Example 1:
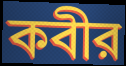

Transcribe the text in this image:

কবীর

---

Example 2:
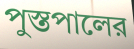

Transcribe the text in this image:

পুস্তপালের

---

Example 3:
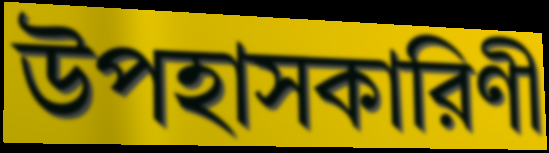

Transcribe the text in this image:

উপহাসকারিণী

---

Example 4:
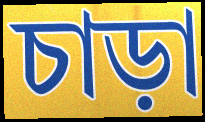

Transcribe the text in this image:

চাড়া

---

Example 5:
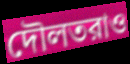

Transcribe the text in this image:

দৌলতরাও